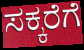
ಸಕ್ಕರೆಗೆ